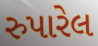
રુપારેલ